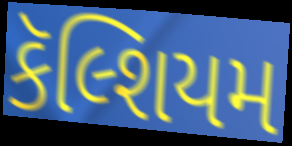
કૅલ્શિયમ